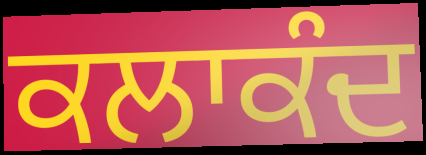
ਕਲਾਕੰਦ